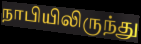
நாபியிலிருந்து